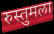
रुस्तुमला